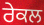
ਰੇਕਲ